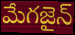
మేగజైన్